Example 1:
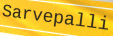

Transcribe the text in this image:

Sarvepalli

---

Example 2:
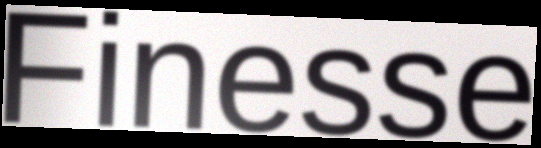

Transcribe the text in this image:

Finesse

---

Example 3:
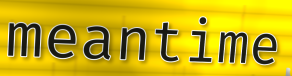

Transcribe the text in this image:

meantime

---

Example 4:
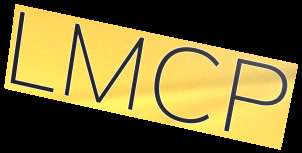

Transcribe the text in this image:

LMCP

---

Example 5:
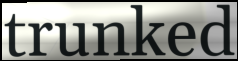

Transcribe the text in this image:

trunked